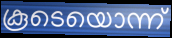
കൂടെയൊന്ന്